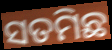
ସତମିଛ